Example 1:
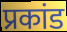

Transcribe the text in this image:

प्रकांड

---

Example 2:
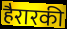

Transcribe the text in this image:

हैरारकी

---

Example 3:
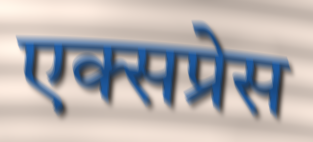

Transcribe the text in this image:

एक्‍सप्रेस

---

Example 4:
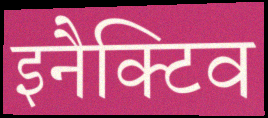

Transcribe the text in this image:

इनैक्टिव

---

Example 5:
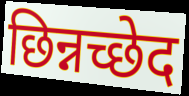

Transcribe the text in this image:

छिन्नच्छेद